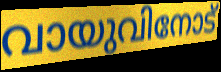
വായുവിനോട്